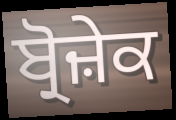
ਬ੍ਰੋਜ਼ੇਕ